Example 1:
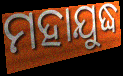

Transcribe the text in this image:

ମହାଯୁଦ୍ଧ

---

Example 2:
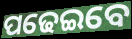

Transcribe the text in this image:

ପଢେଇବେ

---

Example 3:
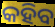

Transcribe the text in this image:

କହିବ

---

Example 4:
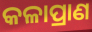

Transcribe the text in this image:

କଳାପ୍ରାଣ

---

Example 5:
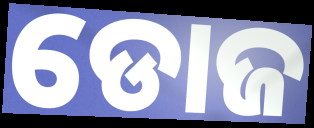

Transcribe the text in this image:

ଡୋଜ